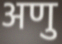
अणु